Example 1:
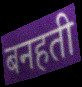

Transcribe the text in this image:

बनहती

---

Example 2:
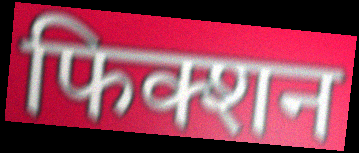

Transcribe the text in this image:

फिक्‍शन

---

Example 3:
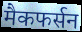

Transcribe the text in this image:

मैकफर्सन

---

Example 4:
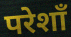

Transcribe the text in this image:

परेशाँ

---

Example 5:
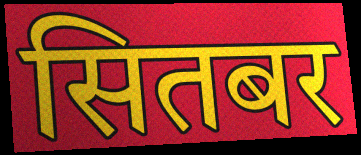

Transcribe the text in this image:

सितबर